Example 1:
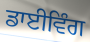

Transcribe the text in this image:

ਡਾਈਵਿੰਗ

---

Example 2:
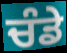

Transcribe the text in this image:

ਚੰਡੇ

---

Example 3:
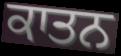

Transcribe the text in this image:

ਕਾਤਨ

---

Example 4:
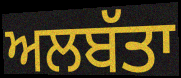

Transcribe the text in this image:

ਅਲਬੱਤਾ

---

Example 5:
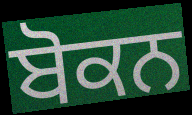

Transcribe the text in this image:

ਬੋਕਨ